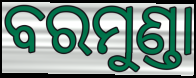
ବରମୁଣ୍ଡା